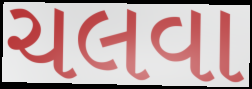
ચલવા